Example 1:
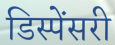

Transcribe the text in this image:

डिस्पेंसरी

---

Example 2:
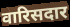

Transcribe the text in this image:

वारिसदार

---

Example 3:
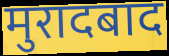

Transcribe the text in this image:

मुरादबाद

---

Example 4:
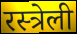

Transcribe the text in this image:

रस्त्रेली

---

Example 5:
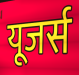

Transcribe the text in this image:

यूजर्स